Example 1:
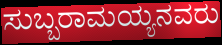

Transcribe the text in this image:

ಸುಬ್ಬರಾಮಯ್ಯನವರು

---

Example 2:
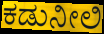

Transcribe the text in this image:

ಕಡುನೀಲಿ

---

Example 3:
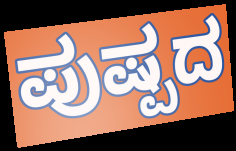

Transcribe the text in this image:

ಪುಷ್ಪದ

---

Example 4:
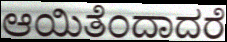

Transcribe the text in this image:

ಆಯಿತೆಂದಾದರೆ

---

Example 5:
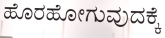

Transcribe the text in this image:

ಹೊರಹೋಗುವುದಕ್ಕೆ